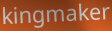
kingmaker